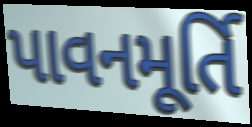
પાવનમૂર્તિ